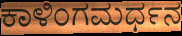
ಕಾಳಿಂಗಮರ್ಧನ